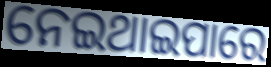
ନେଇଥାଇପାରେ